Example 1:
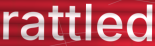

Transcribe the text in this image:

rattled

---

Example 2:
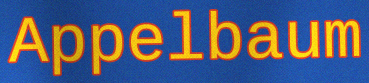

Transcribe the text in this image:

Appelbaum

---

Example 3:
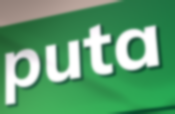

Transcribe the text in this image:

puta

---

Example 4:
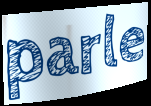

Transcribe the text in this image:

parle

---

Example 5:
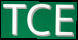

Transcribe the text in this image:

TCE